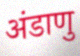
अंडाणु